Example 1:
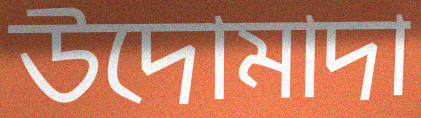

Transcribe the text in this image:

উদোমাদা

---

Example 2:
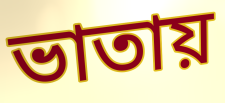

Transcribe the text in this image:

ভাতায়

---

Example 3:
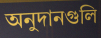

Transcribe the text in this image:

অনুদানগুলি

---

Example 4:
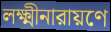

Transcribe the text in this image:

লক্ষ্মীনারায়ণে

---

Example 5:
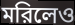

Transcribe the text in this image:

মরিলেও